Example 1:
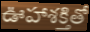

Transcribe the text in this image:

ఊహాశక్తితో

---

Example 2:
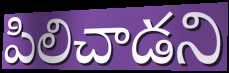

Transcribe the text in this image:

పిలిచాడని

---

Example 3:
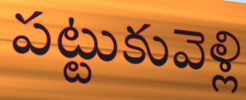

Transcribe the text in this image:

పట్టుకువెళ్లి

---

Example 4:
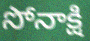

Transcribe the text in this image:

సోనాక్షి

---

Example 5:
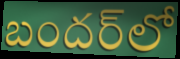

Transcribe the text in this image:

బందర్‌లో